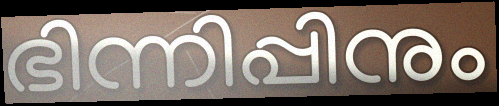
ഭിന്നിപ്പിനും